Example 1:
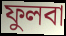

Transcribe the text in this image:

ফুলবা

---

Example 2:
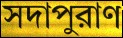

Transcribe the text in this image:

সদাপুরাণ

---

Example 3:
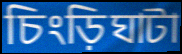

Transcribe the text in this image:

চিংড়িঘাটা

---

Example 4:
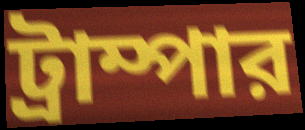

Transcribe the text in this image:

ট্রাম্পার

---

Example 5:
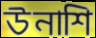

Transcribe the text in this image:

উনাশি